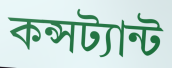
কন্সট্যান্ট